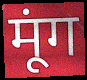
मूंग